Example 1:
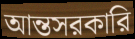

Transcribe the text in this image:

আন্তসরকারি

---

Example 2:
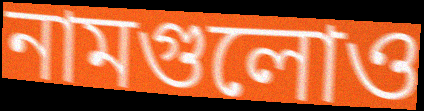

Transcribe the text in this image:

নামগুলোও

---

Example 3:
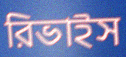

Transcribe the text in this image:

রিভাইস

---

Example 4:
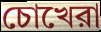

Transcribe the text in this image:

চোখেরা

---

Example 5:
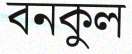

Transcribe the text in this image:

বনকুল